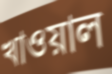
খাওয়াল